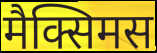
मैक्सिमस